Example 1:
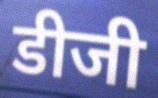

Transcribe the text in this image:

डीजी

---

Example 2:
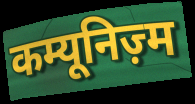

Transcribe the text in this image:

कम्यूनिज़्म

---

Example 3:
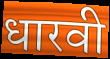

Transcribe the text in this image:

धारवी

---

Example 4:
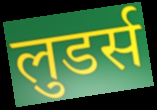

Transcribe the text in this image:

लुडर्स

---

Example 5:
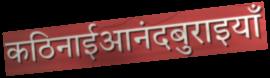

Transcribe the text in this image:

कठिनाईआनंदबुराइयाँ